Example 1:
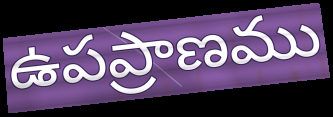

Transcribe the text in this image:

ఉపప్రాణము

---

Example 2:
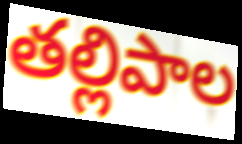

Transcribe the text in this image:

తల్లిపాల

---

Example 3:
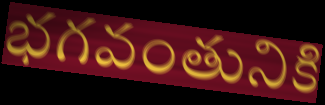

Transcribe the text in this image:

భగవంతునికి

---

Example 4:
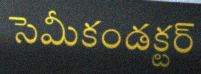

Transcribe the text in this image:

సెమీకండక్టర్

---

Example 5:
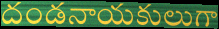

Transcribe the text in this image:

దండనాయకులుగా